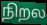
நிறல